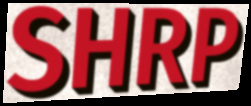
SHRP